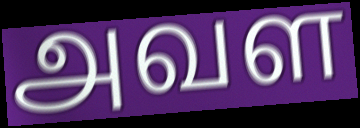
அவள